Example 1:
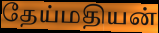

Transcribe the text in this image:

தேய்மதியன்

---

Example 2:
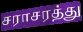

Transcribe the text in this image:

சராசரத்து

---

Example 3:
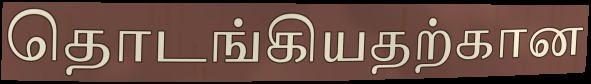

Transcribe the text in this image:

தொடங்கியதற்கான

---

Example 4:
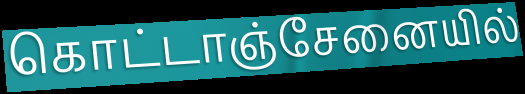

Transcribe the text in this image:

கொட்டாஞ்சேனையில்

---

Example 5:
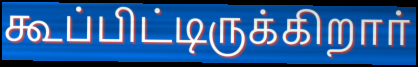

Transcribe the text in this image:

கூப்பிட்டிருக்கிறார்